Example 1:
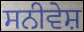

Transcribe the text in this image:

ਸਨੀਵੇਸ਼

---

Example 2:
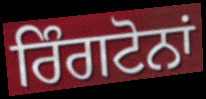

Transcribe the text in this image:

ਰਿੰਗਟੋਨਾਂ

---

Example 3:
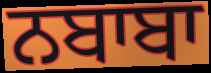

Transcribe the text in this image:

ਨਬਾਬਾ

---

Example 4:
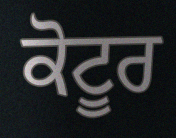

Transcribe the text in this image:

ਕੋਟੂਰ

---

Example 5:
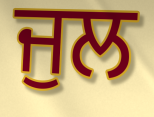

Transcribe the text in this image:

ਜੁਲ